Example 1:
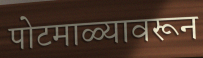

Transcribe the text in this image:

पोटमाळ्यावरून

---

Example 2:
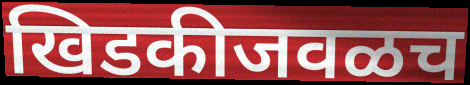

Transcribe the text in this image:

खिडकीजवळच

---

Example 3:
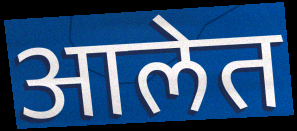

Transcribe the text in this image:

आलेत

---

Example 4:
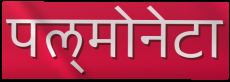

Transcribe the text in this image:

पल्मोनेटा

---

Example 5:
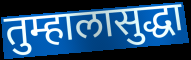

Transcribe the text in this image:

तुम्हालासुद्धा